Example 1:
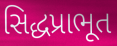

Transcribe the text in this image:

સિદ્ધપ્રાભૂત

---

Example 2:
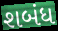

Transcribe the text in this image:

શબંધ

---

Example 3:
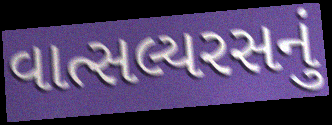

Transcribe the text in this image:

વાત્સલ્યરસનું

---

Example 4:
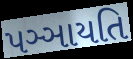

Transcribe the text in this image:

પઞ્ઞાયતિ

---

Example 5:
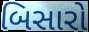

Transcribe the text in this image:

બિસારો